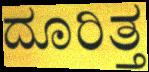
ದೂರಿತ್ತ